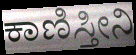
ಕಾಣಿಸ್ತೀನಿ